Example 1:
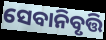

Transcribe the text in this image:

ସେବାନିବୃତ୍ତି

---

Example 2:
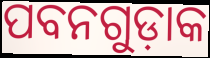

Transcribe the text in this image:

ପବନଗୁଡ଼ାକ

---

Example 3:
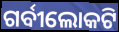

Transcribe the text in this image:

ଗର୍ବୀଲୋକଟି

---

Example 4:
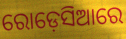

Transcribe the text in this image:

ରୋଡ଼େସିଆରେ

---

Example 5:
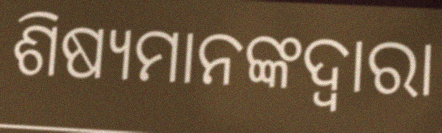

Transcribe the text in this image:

ଶିଷ୍ୟମାନଙ୍କଦ୍ୱାରା